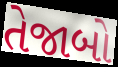
તેજાબો